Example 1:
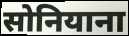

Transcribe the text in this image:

सोनियाना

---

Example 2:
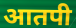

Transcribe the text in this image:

आतपी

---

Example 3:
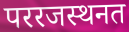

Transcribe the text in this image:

पररजस्थनत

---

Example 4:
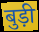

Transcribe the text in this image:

बुड़ी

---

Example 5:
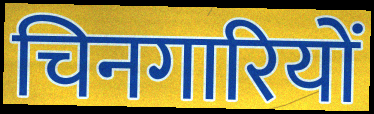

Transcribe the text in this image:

चिनगारियों